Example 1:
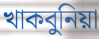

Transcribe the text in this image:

খাকবুনিয়া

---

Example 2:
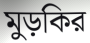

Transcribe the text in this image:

মুড়কির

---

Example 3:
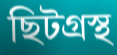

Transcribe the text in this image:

ছিটগ্রস্থ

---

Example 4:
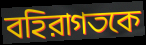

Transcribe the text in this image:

বহিরাগতকে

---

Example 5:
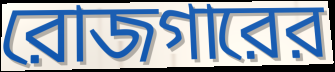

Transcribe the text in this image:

রোজগারের